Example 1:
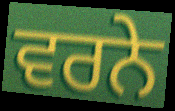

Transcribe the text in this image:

ਵਰਨੇ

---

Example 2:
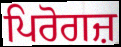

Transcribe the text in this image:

ਪਿਰੋਗਜ਼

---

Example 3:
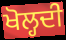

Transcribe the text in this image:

ਖੋਲ੍ਹਦੀ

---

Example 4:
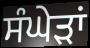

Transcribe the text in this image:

ਸੰਘੇੜਾਂ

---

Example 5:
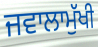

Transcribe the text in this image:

ਜਵਾਲਾਮੁੱਖੀ